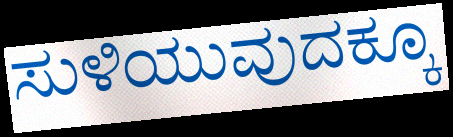
ಸುಳಿಯುವುದಕ್ಕೂ